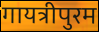
गायत्रीपुरम